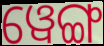
ୱେଙ୍ଗ